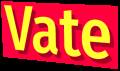
Vate